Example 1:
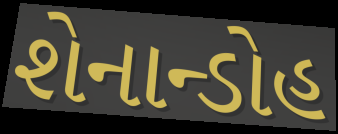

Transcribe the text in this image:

શેનાન્ડોહ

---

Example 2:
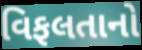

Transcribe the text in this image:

વિફલતાનો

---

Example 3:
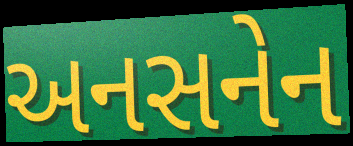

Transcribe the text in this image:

અનસનેન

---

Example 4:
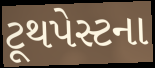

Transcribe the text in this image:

ટૂથપેસ્ટના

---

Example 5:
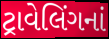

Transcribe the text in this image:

ટ્રાવેલિંગનાં